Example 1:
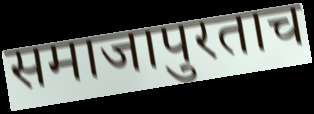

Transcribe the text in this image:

समाजापुरताच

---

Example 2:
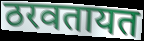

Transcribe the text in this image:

ठरवतायत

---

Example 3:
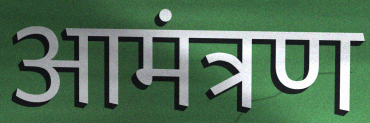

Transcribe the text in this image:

आमंत्रण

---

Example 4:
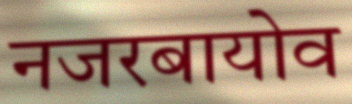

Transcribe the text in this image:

नजरबायोव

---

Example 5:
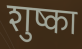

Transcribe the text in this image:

शुष्का